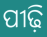
ପୀଢ଼ି